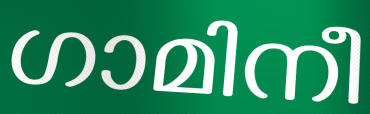
ഗാമിനീ